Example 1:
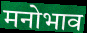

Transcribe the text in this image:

मनोभाव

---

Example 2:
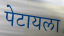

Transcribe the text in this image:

पेटायला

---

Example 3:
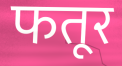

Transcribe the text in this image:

फतूर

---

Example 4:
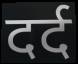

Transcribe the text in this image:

दर्द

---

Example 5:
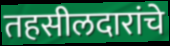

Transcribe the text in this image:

तहसीलदारांचे